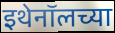
इथेनॉलच्या